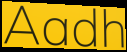
Aadh